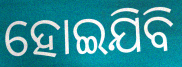
ହୋଇଯିବି